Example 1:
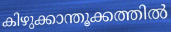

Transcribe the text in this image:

കിഴുക്കാന്തൂക്കത്തിൽ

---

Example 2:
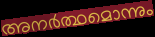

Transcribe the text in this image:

അനർത്ഥമൊന്നും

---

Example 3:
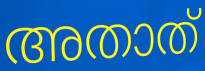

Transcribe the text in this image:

അതാത്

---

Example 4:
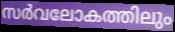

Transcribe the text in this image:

സർവലോകത്തിലും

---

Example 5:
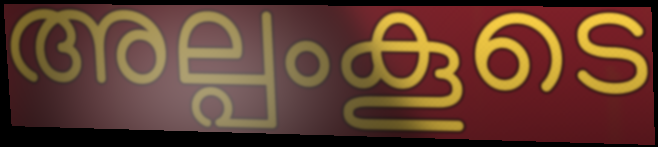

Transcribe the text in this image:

അല്പംകൂടെ